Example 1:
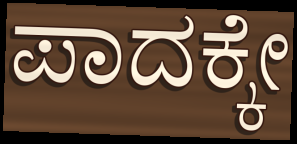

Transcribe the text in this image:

ಪಾದಕ್ಕೇ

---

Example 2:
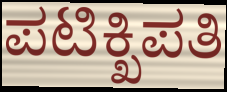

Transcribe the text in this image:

ಪಟಿಕ್ಖಿಪತಿ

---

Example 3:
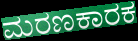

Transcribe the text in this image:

ಮರಣಕಾರಕ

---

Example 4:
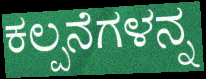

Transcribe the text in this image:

ಕಲ್ಪನೆಗಳನ್ನ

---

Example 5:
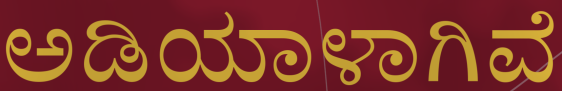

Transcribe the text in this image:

ಅಡಿಯಾಳಾಗಿವೆ